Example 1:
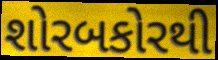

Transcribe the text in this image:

શોરબકોરથી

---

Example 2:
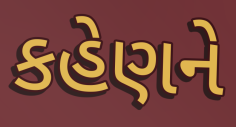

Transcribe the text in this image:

કહેણને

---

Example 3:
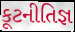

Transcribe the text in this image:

કૂટનીતિજ્ઞ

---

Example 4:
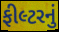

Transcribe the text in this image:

ફીલ્ટરનું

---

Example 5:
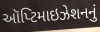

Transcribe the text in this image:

ઑપ્ટિમાઇઝેશનનું